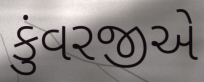
કુંવરજીએ